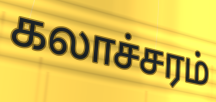
கலாச்சரம்